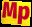
Mp